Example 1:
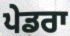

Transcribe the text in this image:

ਪੇਡਰਾ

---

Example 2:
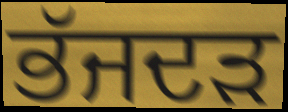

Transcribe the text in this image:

ਭੱਜਦੜ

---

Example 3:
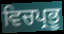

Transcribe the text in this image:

ਵਿਚਪ੍ਰਭੂ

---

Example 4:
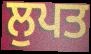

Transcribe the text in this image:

ਲੁਪਤ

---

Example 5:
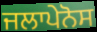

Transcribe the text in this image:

ਜਲਾਪੇਨੋਸ